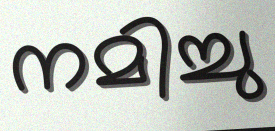
നമിച്ചു